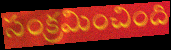
సంక్రమించింది